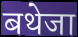
बथेजा